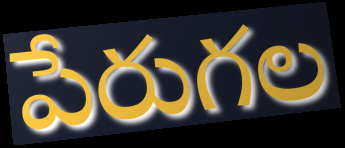
పేరుగల